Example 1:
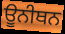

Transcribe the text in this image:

ਊਨੀਥਨ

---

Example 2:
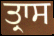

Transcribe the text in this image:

ਤ੍ਰਾਸ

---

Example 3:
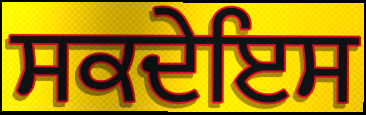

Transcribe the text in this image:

ਸਕਦੇਇਸ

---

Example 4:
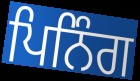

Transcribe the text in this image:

ਪਿਨਿੰਗ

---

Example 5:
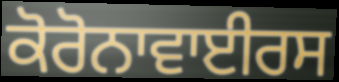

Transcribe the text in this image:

ਕੋਰੋਨਾਵਾਈਰਸ